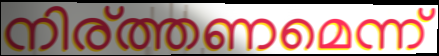
നിര്ത്തണമെന്ന്